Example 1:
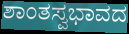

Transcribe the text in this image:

ಶಾಂತಸ್ವಭಾವದ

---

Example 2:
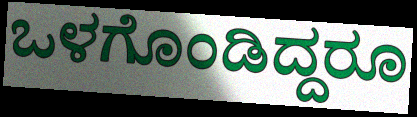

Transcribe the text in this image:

ಒಳಗೊಂಡಿದ್ದರೂ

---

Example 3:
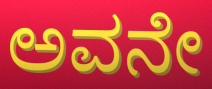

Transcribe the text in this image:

ಅವನೇ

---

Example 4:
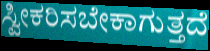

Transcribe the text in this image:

ಸ್ವೀಕರಿಸಬೇಕಾಗುತ್ತದೆ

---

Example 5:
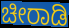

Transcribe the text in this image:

ಚೀರಾಡಿ